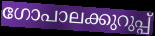
ഗോപാലക്കുറുപ്പ്